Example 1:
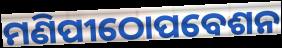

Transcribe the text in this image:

ମଣିପୀଠୋପବେଶନ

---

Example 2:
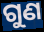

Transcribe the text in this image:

ଗୁଣ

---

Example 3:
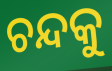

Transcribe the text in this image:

ଚନ୍ଦକୁ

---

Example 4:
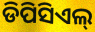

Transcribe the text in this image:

ଡିପିସିଏଲ୍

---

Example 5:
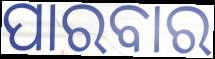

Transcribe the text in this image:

ପାରବାର